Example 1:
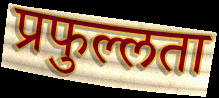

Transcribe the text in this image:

प्रफुल्लता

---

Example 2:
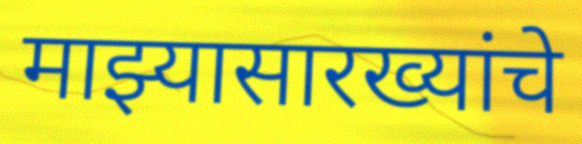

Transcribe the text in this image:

माझ्यासारख्यांचे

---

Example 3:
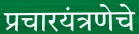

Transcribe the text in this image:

प्रचारयंत्रणेचे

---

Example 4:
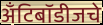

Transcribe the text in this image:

अँटिबॉडीजचे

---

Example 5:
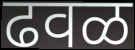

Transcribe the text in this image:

ढवळ